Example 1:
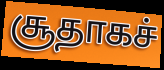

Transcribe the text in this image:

சூதாகச்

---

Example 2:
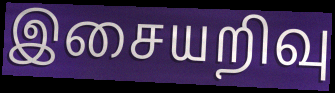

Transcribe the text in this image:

இசையறிவு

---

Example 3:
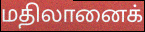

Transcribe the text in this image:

மதிலானைக்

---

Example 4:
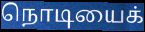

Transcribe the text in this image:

நொடியைக்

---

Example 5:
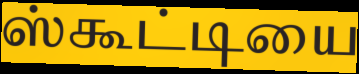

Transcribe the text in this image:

ஸ்கூட்டியை